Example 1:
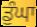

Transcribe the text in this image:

ਡੁੰਘਾ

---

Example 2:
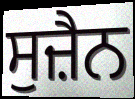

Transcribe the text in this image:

ਸੁਜ਼ੈਨ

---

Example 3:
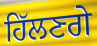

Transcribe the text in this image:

ਹਿੱਲਣਗੇ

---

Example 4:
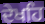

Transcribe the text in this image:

ਦੇਖਹਿ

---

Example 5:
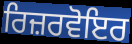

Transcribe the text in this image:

ਰਿਜ਼ਰਵੋਇਰ